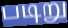
படிறு